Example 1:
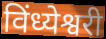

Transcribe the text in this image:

विंध्येश्वरी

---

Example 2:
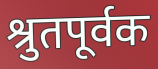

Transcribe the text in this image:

श्रुतपूर्वक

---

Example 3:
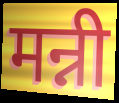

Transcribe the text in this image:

मन्नी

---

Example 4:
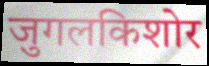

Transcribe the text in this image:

जुगलकिशोर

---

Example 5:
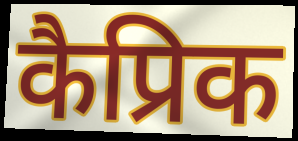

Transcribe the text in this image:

कैप्रिक